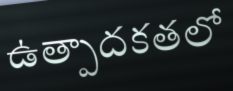
ఉత్పాదకతలో